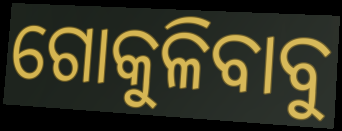
ଗୋକୁଳିବାବୁ